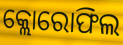
କ୍ଲୋରୋଫିଲ